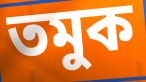
তমুক